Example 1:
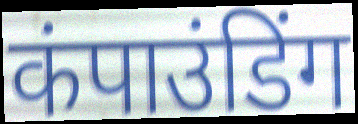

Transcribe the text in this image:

कंपाउंडिंग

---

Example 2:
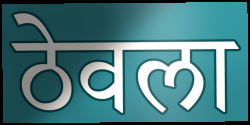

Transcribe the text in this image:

ठेवला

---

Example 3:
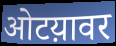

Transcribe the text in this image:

ओटय़ावर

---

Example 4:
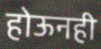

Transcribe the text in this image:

होऊनही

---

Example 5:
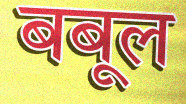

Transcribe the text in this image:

बबूल